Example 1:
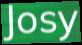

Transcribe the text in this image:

Josy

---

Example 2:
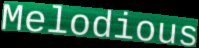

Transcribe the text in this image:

Melodious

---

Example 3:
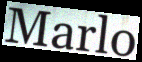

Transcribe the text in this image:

Marlo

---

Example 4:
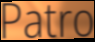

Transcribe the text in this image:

Patro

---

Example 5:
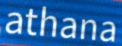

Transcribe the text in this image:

athana